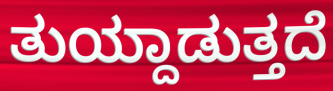
ತುಯ್ದಾಡುತ್ತದೆ